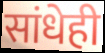
सांधेही